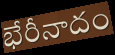
భేరీనాదం